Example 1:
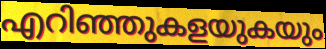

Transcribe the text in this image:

എറിഞ്ഞുകളയുകയും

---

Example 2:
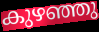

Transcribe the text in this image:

കുഴഞ്ഞു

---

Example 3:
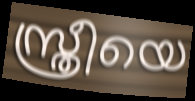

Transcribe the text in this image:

സ്ത്രീയെ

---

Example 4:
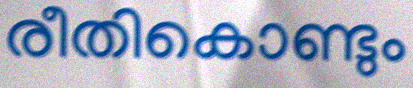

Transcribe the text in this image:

രീതികൊണ്ടും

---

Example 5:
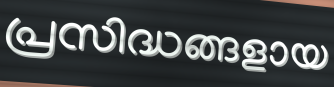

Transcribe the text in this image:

പ്രസിദ്ധങ്ങളായ